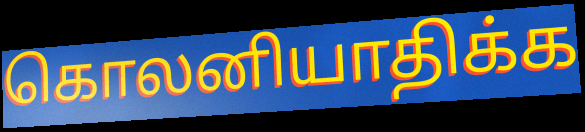
கொலனியாதிக்க